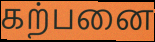
கற்பனை